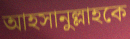
আহসানুল্লাহকে